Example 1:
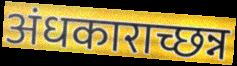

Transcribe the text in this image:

अंधकाराच्छन्न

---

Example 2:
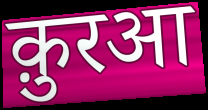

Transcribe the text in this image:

क़ुरआ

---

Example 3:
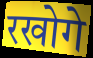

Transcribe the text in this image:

रखोगे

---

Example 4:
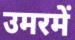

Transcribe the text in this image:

उमरमें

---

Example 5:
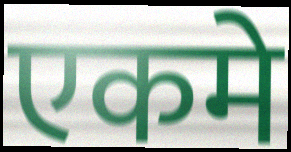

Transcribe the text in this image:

एकमे